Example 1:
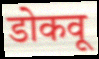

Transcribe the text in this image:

डोकवू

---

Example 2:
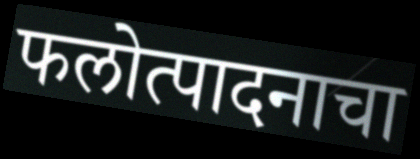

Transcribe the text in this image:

फलोत्पादनाचा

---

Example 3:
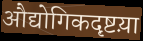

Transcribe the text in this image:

औद्योगिकदृष्टय़ा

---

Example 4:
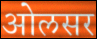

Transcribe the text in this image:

ओलसर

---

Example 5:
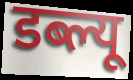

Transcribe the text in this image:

डब्ल्यू